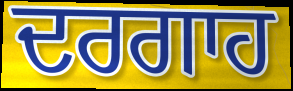
ਦਰਗਾਹ